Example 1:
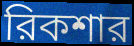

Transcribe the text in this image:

রিকশার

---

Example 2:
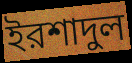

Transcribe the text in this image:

ইরশাদুল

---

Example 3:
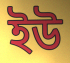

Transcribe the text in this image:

ইউ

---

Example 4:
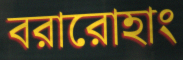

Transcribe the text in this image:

বরারোহাং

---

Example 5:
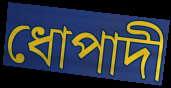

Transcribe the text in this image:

ধোপাদী